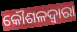
କୌଶଳଦ୍ୱାରା